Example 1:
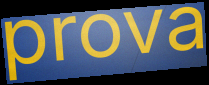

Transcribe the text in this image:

prova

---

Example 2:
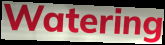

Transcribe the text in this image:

Watering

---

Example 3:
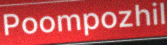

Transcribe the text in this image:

Poompozhil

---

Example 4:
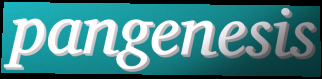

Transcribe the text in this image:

pangenesis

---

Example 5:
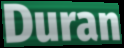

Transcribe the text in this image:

Duran